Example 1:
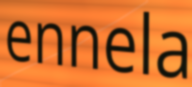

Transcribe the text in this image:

ennela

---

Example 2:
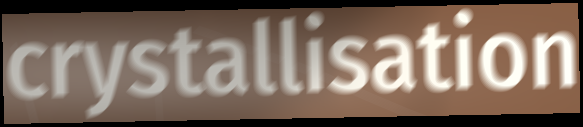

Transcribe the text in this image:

crystallisation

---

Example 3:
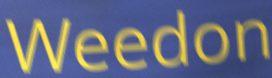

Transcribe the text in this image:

Weedon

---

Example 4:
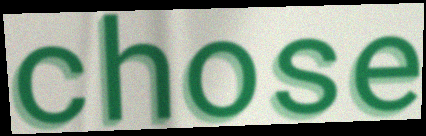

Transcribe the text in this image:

chose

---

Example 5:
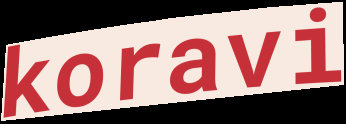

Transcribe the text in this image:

koravi